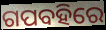
ଗପବହିରେ